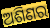
ଅଶିଣର